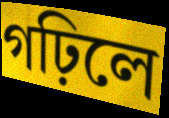
গঢ়িলে